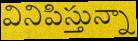
వినిపిస్తున్నా